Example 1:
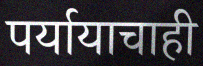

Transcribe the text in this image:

पर्यायाचाही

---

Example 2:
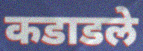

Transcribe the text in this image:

कडाडले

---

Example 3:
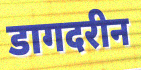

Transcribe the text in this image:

डागदरीन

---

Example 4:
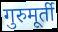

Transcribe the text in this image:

गुरुमूर्ती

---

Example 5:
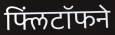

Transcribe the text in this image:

फ्लिंटॉफने